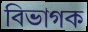
বিভাগক